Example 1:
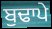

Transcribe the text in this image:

ਬੁਢਾਪੇ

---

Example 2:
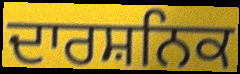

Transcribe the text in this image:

ਦਾਰਸ਼ਨਿਕ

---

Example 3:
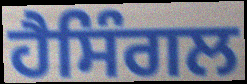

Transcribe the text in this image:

ਹੈਸਿੰਗਲ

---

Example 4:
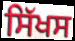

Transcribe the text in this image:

ਸਿੱਖਸ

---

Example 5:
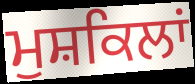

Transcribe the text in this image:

ਮੁਸ਼ਕਿਲਾਂ